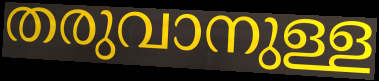
തരുവാനുള്ള